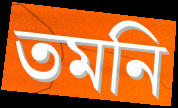
তমনি